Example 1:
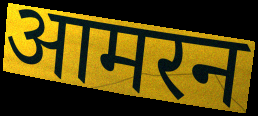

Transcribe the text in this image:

आमरन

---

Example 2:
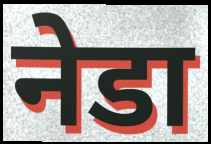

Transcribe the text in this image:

नेडा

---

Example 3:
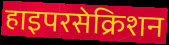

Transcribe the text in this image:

हाइपरसेक्रिशन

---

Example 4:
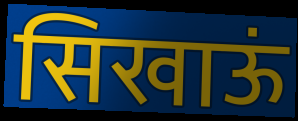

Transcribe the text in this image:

सिखाऊं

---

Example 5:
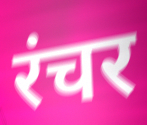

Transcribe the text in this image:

रंचर